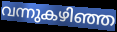
വന്നുകഴിഞ്ഞ